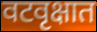
वटवृक्षात